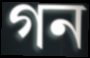
গন